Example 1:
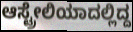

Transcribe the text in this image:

ಆಸ್ಟ್ರೇಲಿಯಾದಲ್ಲಿದ್ದ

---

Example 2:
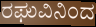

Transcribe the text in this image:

ರಘುವಿನಿಂದ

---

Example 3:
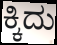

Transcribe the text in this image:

ಕ್ಕಿದು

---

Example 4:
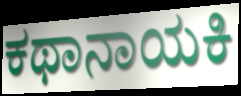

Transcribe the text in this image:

ಕಥಾನಾಯಕಿ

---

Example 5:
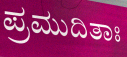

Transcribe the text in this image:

ಪ್ರಮುದಿತಾಃ